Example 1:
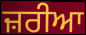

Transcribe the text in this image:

ਜ਼ਰੀਆ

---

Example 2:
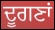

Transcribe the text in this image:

ਦੂਗਣਾਂ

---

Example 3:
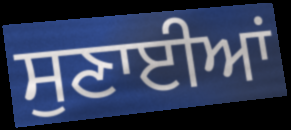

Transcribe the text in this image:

ਸੁਣਾਈਆਂ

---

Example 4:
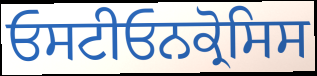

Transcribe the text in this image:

ਓਸਟੀਓਨਕ੍ਰੋਸਿਸ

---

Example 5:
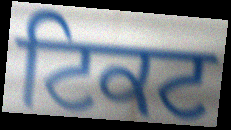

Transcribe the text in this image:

ਟਿਕਟ